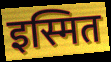
इस्मित